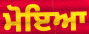
ਮੋਇਆ